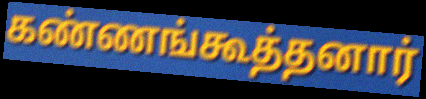
கண்ணங்கூத்தனார்